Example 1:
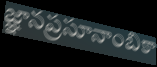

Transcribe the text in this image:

జ్ఞానప్రసూనాంబికా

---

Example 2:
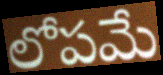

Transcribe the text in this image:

లోపమే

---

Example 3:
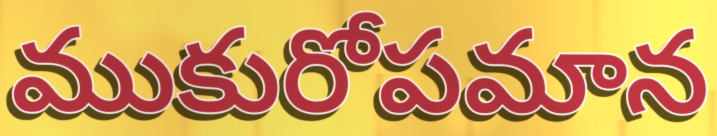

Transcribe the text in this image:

ముకురోపమాన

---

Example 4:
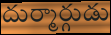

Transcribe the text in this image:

దుర్మార్గుడు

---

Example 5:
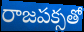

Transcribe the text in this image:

రాజపక్సతో